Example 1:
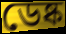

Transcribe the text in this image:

ডেষ্ক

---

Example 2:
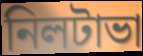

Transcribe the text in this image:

নিলটাভা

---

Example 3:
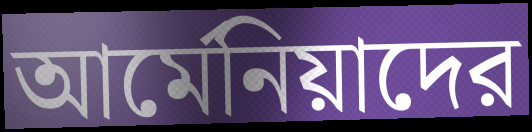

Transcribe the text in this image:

আর্মেনিয়াদের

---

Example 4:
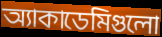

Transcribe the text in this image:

অ্যাকাডেমিগুলো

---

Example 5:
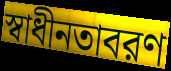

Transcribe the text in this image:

স্বাধীনতাবরণ